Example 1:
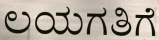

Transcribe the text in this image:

ಲಯಗತಿಗೆ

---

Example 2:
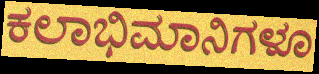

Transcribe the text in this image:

ಕಲಾಭಿಮಾನಿಗಳೂ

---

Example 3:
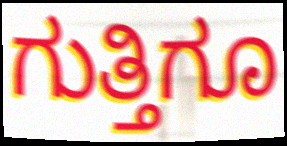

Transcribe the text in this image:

ಗುತ್ತಿಗೂ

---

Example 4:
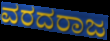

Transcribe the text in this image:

ವರದರಾಜ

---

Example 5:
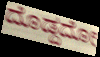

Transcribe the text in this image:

ದೊಡ್ದದೋ